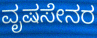
ವೃಷಸೇನರ